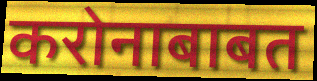
करोनाबाबत